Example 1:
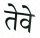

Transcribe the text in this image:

तेवे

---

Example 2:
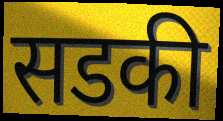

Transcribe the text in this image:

सडकी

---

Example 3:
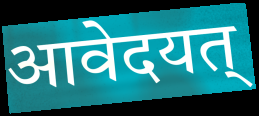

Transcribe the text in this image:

आवेदयत्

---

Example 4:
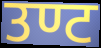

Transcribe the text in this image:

उण्ट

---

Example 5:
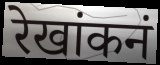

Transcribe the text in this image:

रेखांकनं